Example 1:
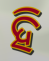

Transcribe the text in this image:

ହି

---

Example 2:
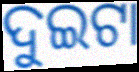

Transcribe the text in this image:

ଦୁଇଟା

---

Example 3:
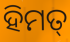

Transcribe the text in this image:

ହିମତ୍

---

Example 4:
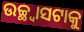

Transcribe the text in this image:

ଉଚ୍ଛ୍ୱାସଟାକୁ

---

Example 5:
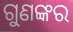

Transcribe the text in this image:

ଗୁଣଙ୍କର